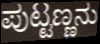
ಪುಟ್ಟಣ್ಣನು